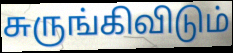
சுருங்கிவிடும்